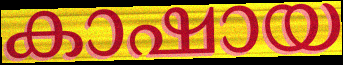
കാഷായ